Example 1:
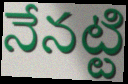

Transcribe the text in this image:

నేనట్టి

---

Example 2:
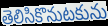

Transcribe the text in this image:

తెలిసికొనుటకును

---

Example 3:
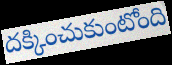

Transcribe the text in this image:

దక్కించుకుంటోంది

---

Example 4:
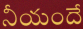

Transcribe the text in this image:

నీయందే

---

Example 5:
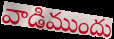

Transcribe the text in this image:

వాడిముందు